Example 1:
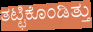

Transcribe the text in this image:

ತಟ್ಟಿಕೊಂಡಿತ್ತು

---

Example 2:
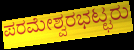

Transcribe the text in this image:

ಪರಮೇಶ್ವರಭಟ್ಟರು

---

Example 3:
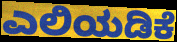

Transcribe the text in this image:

ಎಲಿಯಡಿಕೆ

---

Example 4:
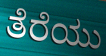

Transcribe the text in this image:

ತೆರೆಯು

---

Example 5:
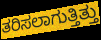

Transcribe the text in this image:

ತರಿಸಲಾಗುತ್ತಿತ್ತು